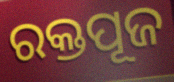
ରକ୍ତପୂଜ